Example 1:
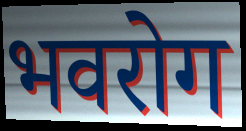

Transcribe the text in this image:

भवरोग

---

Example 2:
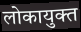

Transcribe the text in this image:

लोकायुक्त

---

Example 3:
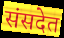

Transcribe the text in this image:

संसदेत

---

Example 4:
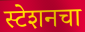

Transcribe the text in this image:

स्टेशनचा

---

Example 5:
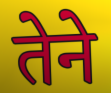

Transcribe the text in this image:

तेने